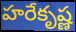
హరేకృష్ణ